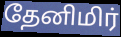
தேனிமிர்